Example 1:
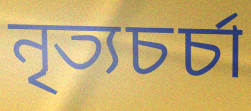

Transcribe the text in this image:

নৃত্যচর্চা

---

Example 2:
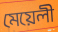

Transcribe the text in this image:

মেয়েলী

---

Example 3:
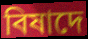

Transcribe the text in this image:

বিষাদে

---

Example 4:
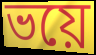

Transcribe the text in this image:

ভয়ে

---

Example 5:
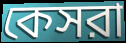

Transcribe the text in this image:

কেসরা